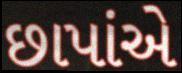
છાપાંએ